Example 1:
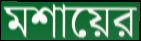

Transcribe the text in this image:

মশায়ের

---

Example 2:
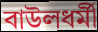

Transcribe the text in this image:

বাউলধর্মী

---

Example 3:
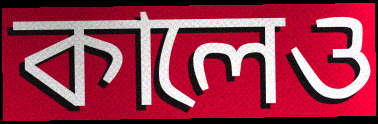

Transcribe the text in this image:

কালেও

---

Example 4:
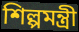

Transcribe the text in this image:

শিল্পমন্ত্রী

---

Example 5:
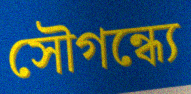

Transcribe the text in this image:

সৌগন্ধ্যে